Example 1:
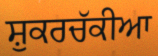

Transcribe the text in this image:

ਸ਼ੁਕਰਚੱਕੀਆ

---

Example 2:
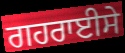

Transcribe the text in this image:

ਗਹਰਾਈਸੇ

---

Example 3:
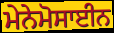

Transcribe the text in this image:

ਮੇਨੇਮੋਸਾਈਨ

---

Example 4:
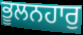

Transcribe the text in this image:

ਭੂਲਨਹਾਰੁ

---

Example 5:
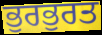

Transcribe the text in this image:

ਭੁਰਭੁਰਤ